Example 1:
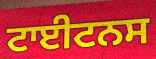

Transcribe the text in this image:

ਟਾਈਟਨਸ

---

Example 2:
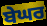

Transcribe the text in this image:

ਬੇਘਰ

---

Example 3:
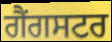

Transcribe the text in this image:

ਗੈਂਗਸਟਰ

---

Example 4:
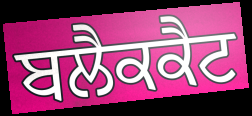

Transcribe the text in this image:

ਬਲੈਕਕੈਟ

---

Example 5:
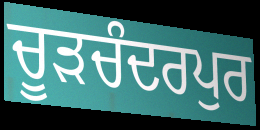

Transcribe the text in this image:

ਚੂੜਚੰਦਰਪੁਰ